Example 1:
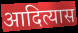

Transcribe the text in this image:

आदित्यास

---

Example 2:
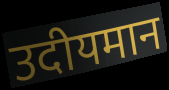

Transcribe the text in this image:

उदीयमान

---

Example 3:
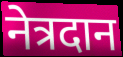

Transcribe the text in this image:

नेत्रदान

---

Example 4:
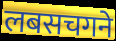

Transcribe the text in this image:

लबसचगने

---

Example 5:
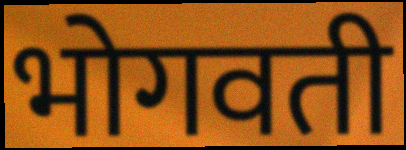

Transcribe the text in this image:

भोगवती